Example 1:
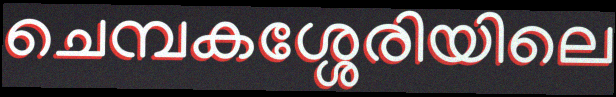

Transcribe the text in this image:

ചെമ്പകശ്ശേരിയിലെ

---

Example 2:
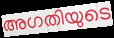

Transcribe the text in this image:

അഗതിയുടെ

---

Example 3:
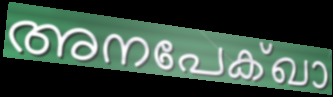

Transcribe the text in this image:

അനപേക്ഖാ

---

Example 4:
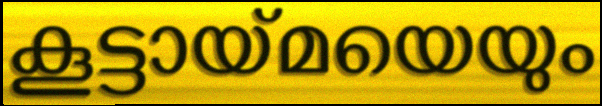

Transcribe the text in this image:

കൂട്ടായ്മയെയും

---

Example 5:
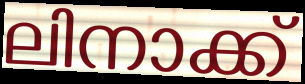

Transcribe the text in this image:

ലിനാക്ക്